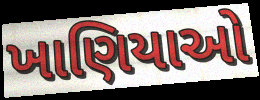
ખાણિયાઓ